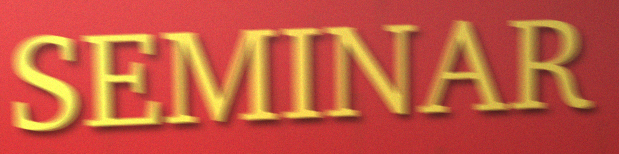
SEMINAR